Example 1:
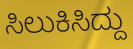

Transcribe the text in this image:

ಸಿಲುಕಿಸಿದ್ದು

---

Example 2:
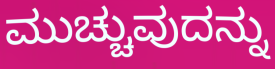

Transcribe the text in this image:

ಮುಚ್ಚುವುದನ್ನು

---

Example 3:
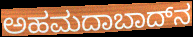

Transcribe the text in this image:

ಅಹಮದಾಬಾದ್‌ನ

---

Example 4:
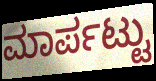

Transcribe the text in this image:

ಮಾರ್ಪಟ್ಟು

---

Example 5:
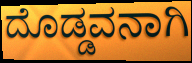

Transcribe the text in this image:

ದೊಡ್ಡವನಾಗಿ